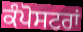
ਕੰਪੋਸਟਰਾਂ